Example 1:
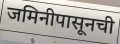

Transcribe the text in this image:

जमिनीपासूनची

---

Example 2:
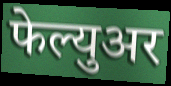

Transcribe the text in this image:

फेल्युअर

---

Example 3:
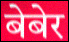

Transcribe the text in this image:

बेबेर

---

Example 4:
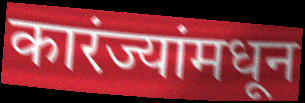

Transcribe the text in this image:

कारंज्यांमधून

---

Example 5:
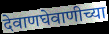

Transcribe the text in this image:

देवाणघेवाणीच्या